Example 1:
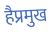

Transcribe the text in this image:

हैप्रमुख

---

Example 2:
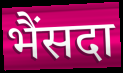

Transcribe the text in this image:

भैंसदा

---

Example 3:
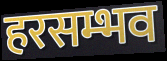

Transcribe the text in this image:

हरसम्भव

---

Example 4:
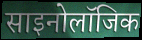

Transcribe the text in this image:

साइनोलॉजिक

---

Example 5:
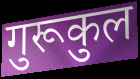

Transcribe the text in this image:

गुरूकुल